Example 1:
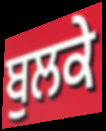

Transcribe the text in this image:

ਬੁਲਕੇ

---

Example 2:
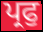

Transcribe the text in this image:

ਪ੍ਰਫੁ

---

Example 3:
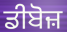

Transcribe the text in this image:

ਡੀਬੋਜ਼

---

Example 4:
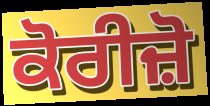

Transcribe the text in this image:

ਕੋਰੀਜ਼ੋ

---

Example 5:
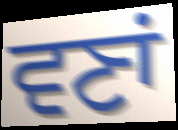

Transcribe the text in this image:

ਵਣਾਂ